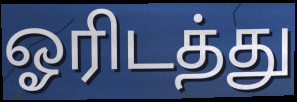
ஓரிடத்து